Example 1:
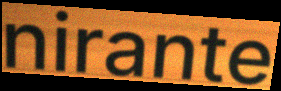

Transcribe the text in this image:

nirante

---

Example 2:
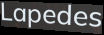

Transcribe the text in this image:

Lapedes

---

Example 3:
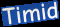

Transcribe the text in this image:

Timid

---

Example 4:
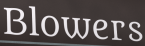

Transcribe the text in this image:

Blowers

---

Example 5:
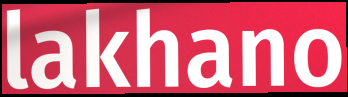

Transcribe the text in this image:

lakhano